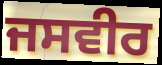
ਜਸਵੀਰ